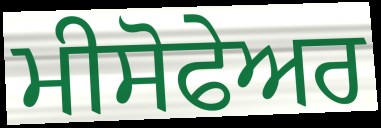
ਮੀਸੋਫੇਅਰ